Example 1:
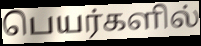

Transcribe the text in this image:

பெயர்களில்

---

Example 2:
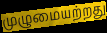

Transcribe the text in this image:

முழுமையற்றது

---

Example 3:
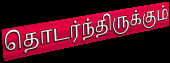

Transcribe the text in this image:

தொடர்ந்திருக்கும்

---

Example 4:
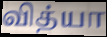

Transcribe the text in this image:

வித்யா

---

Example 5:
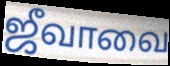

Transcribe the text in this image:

ஜீவாவை